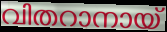
വിതറാനായ്